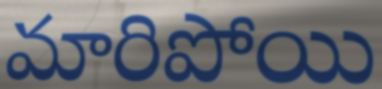
మారిపోయి